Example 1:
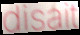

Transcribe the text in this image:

disait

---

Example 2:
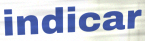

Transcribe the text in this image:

indicar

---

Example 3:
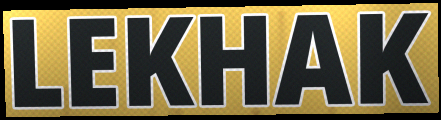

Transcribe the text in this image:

LEKHAK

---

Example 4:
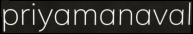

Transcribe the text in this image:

priyamanaval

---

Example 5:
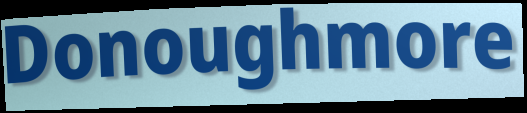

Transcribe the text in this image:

Donoughmore